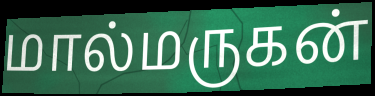
மால்மருகன்